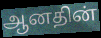
ஆனதின்